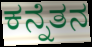
ಕನ್ನೆತನ